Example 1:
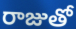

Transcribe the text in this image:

రాజుతో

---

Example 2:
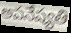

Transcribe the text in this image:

అపనేష్యతి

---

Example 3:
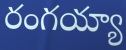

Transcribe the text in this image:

రంగయ్యా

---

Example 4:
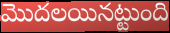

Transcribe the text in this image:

మొదలయినట్టుంది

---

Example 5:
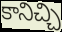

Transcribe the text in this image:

కానిచ్చి